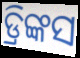
ଡ୍ରିଙ୍କସ